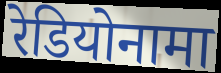
रेडियोनामा